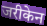
जरीकेन